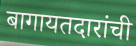
बागायतदारांची